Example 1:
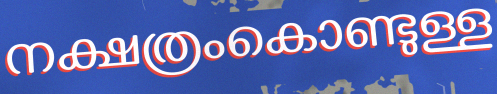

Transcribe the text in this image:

നക്ഷത്രംകൊണ്ടുള്ള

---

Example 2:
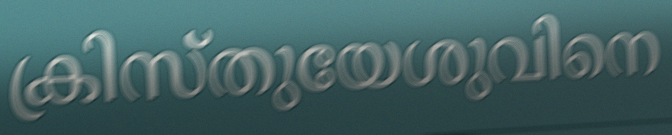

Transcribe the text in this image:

ക്രിസ്തുയേശുവിനെ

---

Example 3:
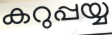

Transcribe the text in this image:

കറുപ്പയ്യ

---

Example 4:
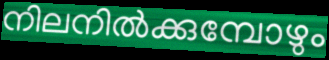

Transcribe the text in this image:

നിലനിൽക്കുമ്പോഴും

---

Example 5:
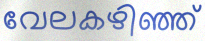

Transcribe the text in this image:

വേലകഴിഞ്ഞ്